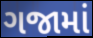
ગજામાં